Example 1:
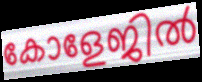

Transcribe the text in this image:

കോളേജിൽ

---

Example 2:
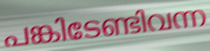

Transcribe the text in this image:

പങ്കിടേണ്ടിവന്ന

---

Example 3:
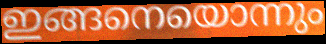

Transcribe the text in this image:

ഇങ്ങനെയൊന്നും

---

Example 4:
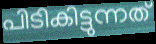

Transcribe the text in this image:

പിടികിട്ടുന്നത്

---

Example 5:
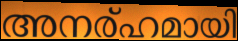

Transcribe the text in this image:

അനര്ഹമായി